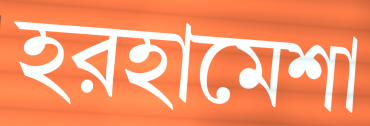
হরহামেশা